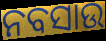
ନବସାଉ